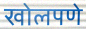
खोलपणे